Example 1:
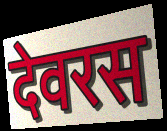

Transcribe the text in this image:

देवरस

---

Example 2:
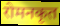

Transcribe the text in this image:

रोमनकृत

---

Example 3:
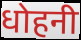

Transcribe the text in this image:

धोहनी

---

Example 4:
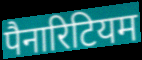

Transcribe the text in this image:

पैनारिटियम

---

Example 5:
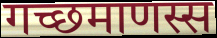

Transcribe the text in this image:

गच्छमाणस्स